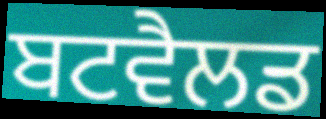
ਬਟਵੈਲਡ